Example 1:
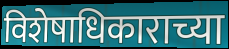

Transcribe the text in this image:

विशेषाधिकाराच्या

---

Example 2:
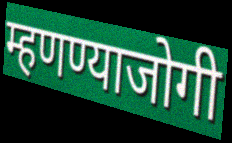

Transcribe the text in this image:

म्हणण्याजोगी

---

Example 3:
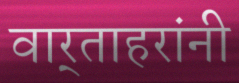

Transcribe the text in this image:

वार्ताहरांनी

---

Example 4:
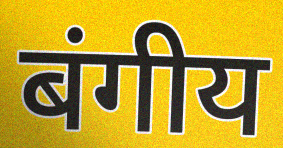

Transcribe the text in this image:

बंगीय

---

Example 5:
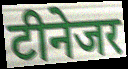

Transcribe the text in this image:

टीनेजर